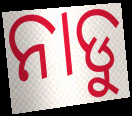
ନାଡୁ